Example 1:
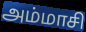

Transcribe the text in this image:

அம்மாசி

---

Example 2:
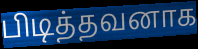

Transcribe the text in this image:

பிடித்தவனாக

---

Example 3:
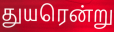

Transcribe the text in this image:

துயரென்று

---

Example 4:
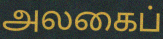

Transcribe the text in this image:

அலகைப்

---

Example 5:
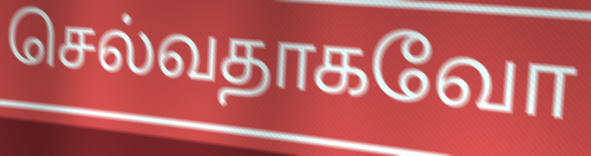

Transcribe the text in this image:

செல்வதாகவோ